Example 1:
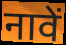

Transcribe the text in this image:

नावें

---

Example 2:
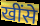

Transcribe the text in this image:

खींसे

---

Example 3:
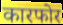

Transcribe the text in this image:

कारफोर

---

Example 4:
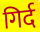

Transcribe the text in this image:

गिर्द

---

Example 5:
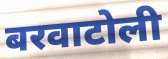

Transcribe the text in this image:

बरवाटोली